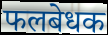
फलबेधक